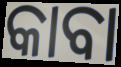
କାବା